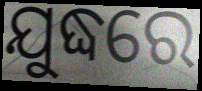
ଯୁଦ୍ଧରେ